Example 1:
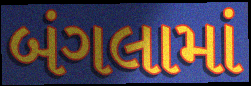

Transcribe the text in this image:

બંગલામાં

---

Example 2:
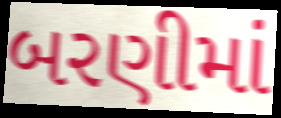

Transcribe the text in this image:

બરણીમાં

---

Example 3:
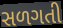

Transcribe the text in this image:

સળગતી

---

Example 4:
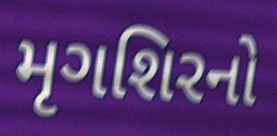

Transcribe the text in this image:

મૃગશિરનો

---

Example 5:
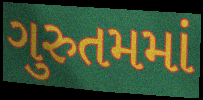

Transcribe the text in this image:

ગુરુતમમાં